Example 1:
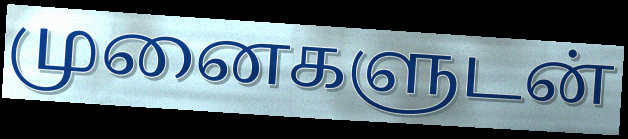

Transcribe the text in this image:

முனைகளுடன்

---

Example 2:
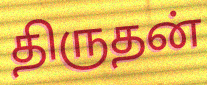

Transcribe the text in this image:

திருதன்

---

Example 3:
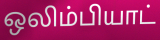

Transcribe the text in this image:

ஒலிம்பியாட்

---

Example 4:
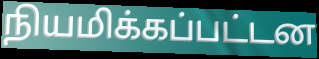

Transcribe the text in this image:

நியமிக்கப்பட்டன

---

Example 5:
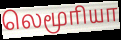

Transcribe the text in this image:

லெமூரியா